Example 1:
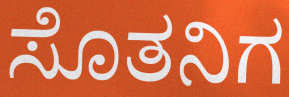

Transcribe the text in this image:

ಸೊತನಿಗ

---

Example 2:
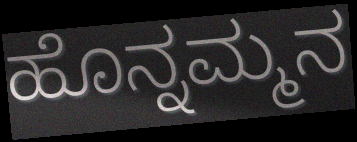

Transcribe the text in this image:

ಹೊನ್ನಮ್ಮನ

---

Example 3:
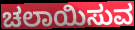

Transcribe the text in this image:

ಚಲಾಯಿಸುವ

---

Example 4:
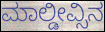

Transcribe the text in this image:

ಮಾಲ್ಡೀವ್ಸಿನ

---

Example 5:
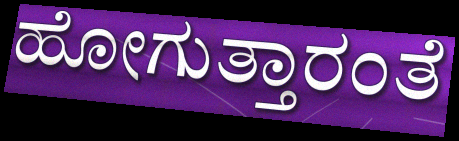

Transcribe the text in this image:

ಹೋಗುತ್ತಾರಂತೆ